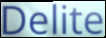
Delite